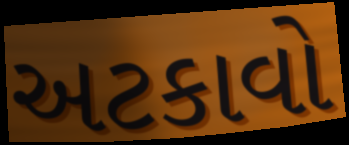
અટકાવો